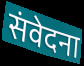
संवेदना